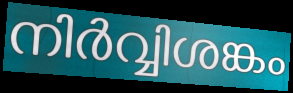
നിർവ്വിശങ്കം